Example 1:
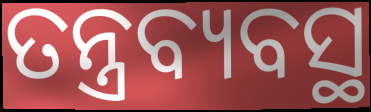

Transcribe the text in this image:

ତନ୍ତ୍ରବ୍ୟବସ୍ଥ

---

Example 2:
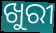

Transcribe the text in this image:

ଖୁରୀ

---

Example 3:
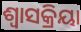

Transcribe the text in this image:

ଶ୍ବାସକ୍ରିୟା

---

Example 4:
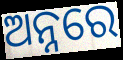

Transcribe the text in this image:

ଅନ୍ନରେ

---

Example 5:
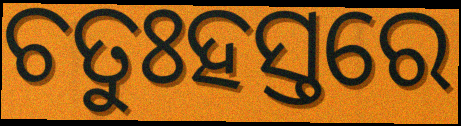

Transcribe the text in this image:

ଚତୁଃହସ୍ତରେ